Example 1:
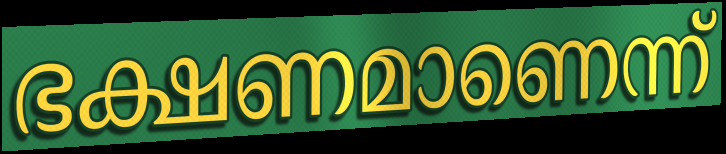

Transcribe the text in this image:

ഭക്ഷണമാണെന്ന്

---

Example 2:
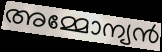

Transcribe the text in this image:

അമ്മോന്യൻ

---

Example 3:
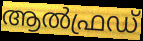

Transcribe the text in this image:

ആൽഫ്രഡ്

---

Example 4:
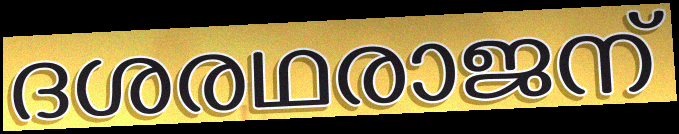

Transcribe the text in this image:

ദശരഥരാജന്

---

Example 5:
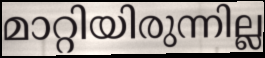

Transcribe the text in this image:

മാറ്റിയിരുന്നില്ല